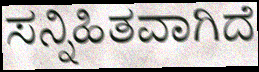
ಸನ್ನಿಹಿತವಾಗಿದೆ